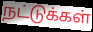
நட்டுக்கள்